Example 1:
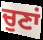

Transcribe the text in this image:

ਚੁਣਾਂ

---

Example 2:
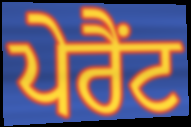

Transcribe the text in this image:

ਪੇਰੈਂਟ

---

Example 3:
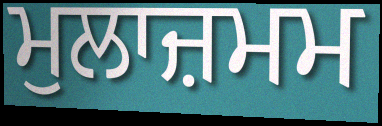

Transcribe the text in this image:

ਮੁਲਾਜ਼ਮਮ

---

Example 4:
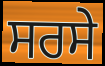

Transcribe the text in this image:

ਸਰਸੇ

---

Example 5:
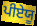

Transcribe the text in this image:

ਪੀਏਯੂ